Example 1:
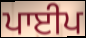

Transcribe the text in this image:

ਪਾਈਪ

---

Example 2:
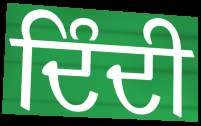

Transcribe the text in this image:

ਦਿੰਦੀ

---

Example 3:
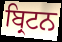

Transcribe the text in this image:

ਬ੍ਰਿਟਨ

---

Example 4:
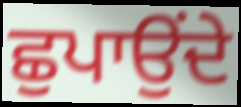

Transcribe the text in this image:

ਛੁਪਾਉਂਦੇ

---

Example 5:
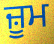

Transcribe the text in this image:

ਜ਼ੂਮ